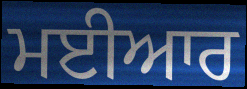
ਮਈਆਰ